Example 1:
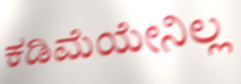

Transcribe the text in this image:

ಕಡಿಮೆಯೇನಿಲ್ಲ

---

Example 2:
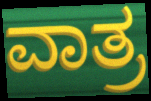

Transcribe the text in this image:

ವಾತ್ರ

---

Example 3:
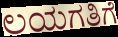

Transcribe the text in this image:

ಲಯಗತಿಗೆ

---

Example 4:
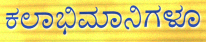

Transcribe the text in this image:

ಕಲಾಭಿಮಾನಿಗಳೂ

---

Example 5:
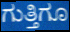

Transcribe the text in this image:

ಗುತ್ತಿಗೂ